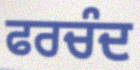
ਫਰਚੰਦ